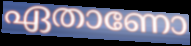
ഏതാണോ